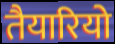
तैयारियो